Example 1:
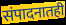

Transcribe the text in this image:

संपादनातही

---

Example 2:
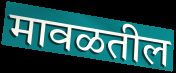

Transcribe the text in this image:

मावळतील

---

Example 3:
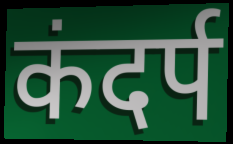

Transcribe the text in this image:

कंदर्प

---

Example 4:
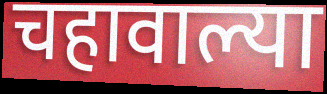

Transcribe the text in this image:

चहावाल्या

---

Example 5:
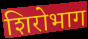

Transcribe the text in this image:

शिरोभाग